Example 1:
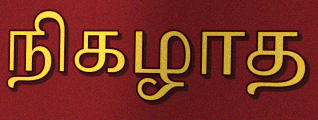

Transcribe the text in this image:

நிகழாத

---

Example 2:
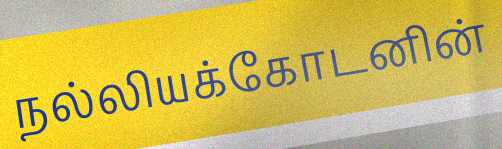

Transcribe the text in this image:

நல்லியக்கோடனின்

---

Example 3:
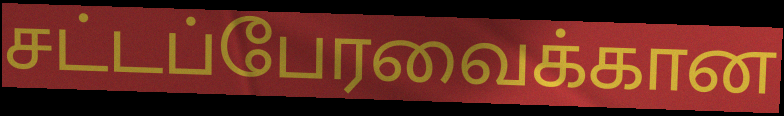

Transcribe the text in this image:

சட்டப்பேரவைக்கான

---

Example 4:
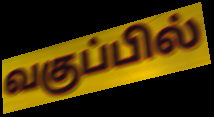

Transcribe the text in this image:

வகுப்பில்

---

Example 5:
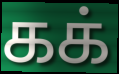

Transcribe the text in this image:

கக்